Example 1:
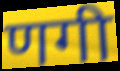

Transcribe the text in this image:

णगी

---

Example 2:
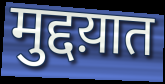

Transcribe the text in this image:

मुद्दय़ात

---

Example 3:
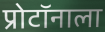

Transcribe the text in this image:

प्रोटॉनाला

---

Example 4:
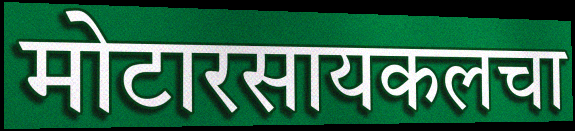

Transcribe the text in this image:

मोटारसायकलचा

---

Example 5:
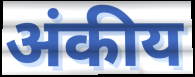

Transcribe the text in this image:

अंकीय